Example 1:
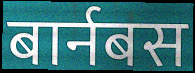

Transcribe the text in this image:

बार्नबस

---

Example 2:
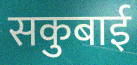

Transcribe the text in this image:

सकुबाई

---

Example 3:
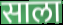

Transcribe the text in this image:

साला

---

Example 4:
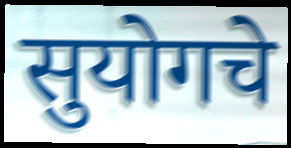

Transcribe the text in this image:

सुयोगचे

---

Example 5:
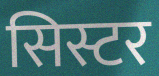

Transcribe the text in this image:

सिस्टर